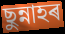
ছুন্নাহৰ